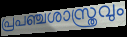
പ്രപഞ്ചശാസ്ത്രവും